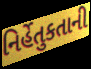
નિર્હેતુકતાની